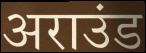
अराउंड